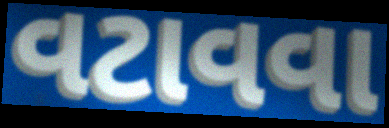
વટાવવા